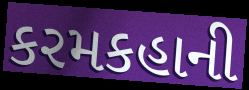
કરમકહાની